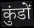
कुंडों